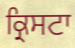
ਕ੍ਰਿਸਟਾ